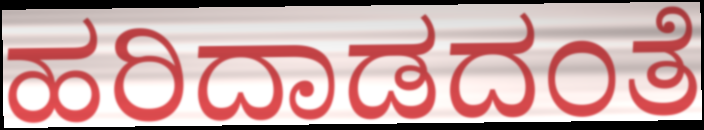
ಹರಿದಾಡದಂತೆ